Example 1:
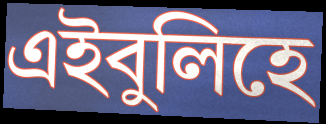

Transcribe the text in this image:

এইবুলিহে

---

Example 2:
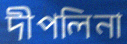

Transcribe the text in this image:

দীপলিনা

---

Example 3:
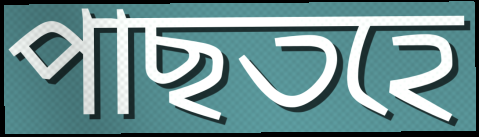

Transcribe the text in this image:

পাছতহে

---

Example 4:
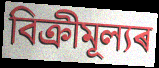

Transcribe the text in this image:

বিক্ৰীমূল্যৰ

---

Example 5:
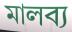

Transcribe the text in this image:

মালব্য